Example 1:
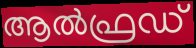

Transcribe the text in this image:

ആൽഫ്രഡ്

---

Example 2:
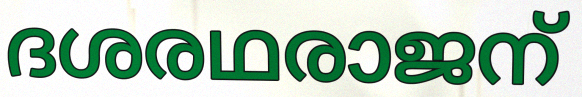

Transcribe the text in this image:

ദശരഥരാജന്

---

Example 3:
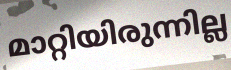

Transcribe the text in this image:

മാറ്റിയിരുന്നില്ല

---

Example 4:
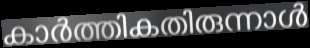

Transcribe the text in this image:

കാർത്തികതിരുന്നാൾ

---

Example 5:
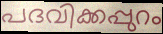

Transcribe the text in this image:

പദവിക്കപ്പുറം